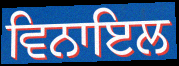
ਵਿਨਾਇਲ